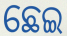
ଛେଇ